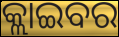
କ୍ଲାଇବର